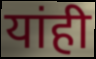
यांही